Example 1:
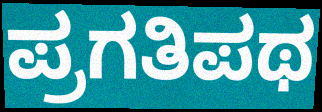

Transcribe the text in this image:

ಪ್ರಗತಿಪಥ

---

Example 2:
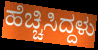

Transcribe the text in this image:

ಹೆಚ್ಚಿಸಿದ್ದಳು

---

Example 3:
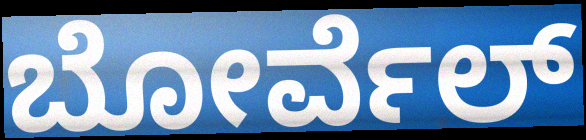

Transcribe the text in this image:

ಬೋರ್ವೆಲ್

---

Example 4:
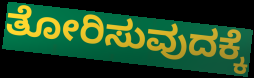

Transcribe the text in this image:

ತೋರಿಸುವುದಕ್ಕೆ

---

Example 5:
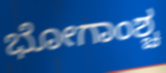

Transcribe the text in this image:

ಭೋಗಾಂಶ್ಚ